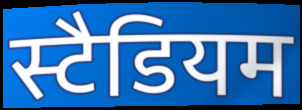
स्टैडियम